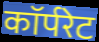
कॉर्परेट